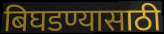
बिघडण्यासाठी